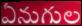
ఏనుగుల